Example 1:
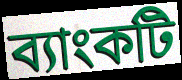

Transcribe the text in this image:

ব্যাংকটি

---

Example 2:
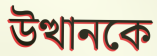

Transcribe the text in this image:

উত্থানকে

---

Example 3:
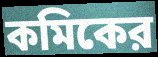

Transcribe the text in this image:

কমিকের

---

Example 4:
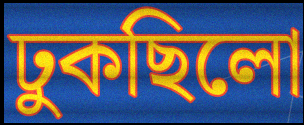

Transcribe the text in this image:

ঢুকছিলো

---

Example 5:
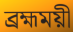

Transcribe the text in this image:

ব্রহ্মময়ী